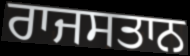
ਰਾਜਸਤਾਨ